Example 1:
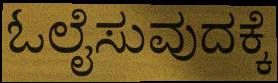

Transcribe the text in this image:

ಓಲೈಸುವುದಕ್ಕೆ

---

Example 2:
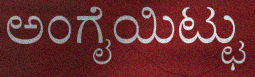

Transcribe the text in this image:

ಅಂಗೈಯಿಟ್ಟು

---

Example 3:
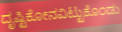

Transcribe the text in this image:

ದೃಷ್ಟಿಕೋನವಿಟ್ಟುಕೊಂಡು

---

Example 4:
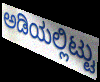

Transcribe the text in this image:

ಅಡಿಯಲ್ಲಿಟ್ಟು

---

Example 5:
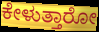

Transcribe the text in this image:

ಕೇಳುತ್ತಾರೋ